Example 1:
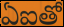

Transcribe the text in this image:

ఏఐతో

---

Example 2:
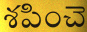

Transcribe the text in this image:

శపించె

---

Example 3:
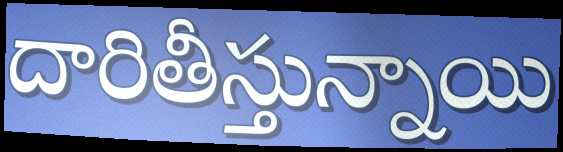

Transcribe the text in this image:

దారితీస్తున్నాయి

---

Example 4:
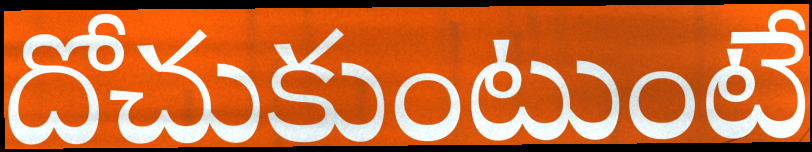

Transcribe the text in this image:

దోచుకుంటుంటే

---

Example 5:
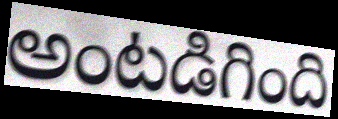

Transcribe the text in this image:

అంటడిగింది